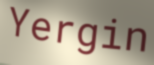
Yergin